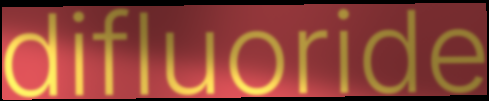
difluoride